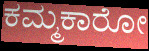
ಕಮ್ಮಕಾರೋ